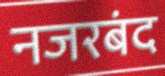
नजरबंद